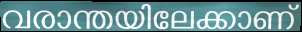
വരാന്തയിലേക്കാണ്